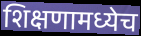
शिक्षणामध्येच